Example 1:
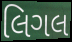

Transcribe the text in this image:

લિગલ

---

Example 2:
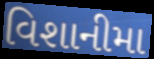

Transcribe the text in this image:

વિશાનીમા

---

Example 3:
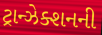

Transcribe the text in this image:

ટ્રાન્ઝેક્શનની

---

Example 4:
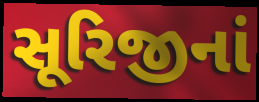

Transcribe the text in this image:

સૂરિજીનાં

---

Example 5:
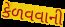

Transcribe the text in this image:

કેળવવાની